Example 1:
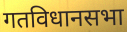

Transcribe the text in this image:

गतविधानसभा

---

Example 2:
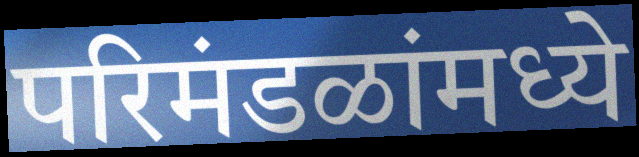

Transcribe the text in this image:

परिमंडळांमध्ये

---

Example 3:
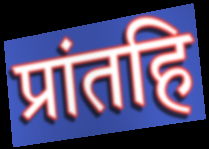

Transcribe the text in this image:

प्रांतहि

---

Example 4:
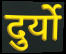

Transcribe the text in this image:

दुर्यो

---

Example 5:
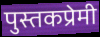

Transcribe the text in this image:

पुस्तकप्रेमी